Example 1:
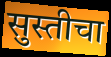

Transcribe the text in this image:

सुस्तीचा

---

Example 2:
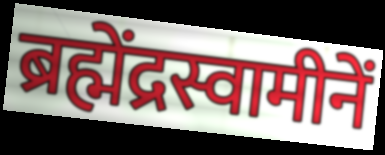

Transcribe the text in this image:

ब्रह्मेंद्रस्वामीनें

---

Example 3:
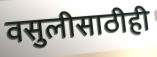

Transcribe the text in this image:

वसुलीसाठीही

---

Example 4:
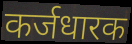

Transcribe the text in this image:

कर्जधारक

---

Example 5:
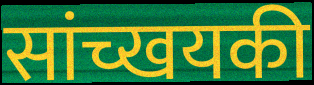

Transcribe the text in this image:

सांच्खयकी